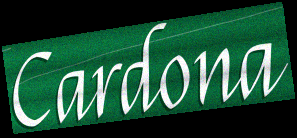
Cardona